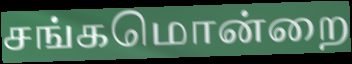
சங்கமொன்றை